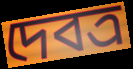
দেবত্র